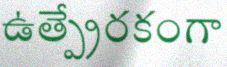
ఉత్ప్రేరకంగా